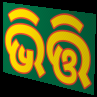
ଭିତ୍ତି